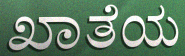
ಖಾತೆಯ